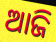
ଆଜି